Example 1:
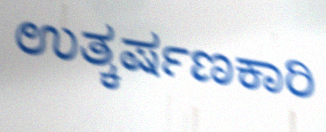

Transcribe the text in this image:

ಉತ್ಕರ್ಷಣಕಾರಿ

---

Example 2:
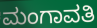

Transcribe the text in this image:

ಮಂಗಾವತಿ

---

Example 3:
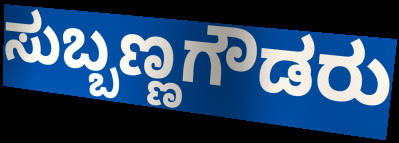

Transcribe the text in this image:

ಸುಬ್ಬಣ್ಣಗೌಡರು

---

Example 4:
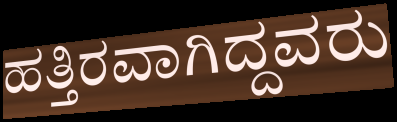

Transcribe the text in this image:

ಹತ್ತಿರವಾಗಿದ್ದವರು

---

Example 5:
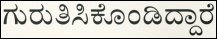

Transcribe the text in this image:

ಗುರುತಿಸಿಕೊಂಡಿದ್ದಾರೆ